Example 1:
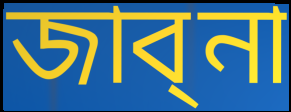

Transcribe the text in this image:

জাব্‌না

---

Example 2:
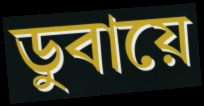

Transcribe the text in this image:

ডুবায়ে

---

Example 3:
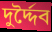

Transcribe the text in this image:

দুর্দ্দৈব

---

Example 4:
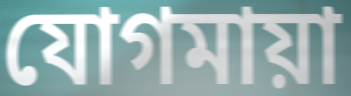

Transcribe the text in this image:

যোগমায়া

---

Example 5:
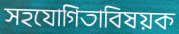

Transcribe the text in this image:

সহযোগিতাবিষয়ক